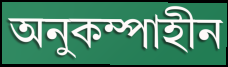
অনুকম্পাহীন